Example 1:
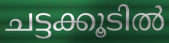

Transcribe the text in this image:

ചട്ടക്കൂടിൽ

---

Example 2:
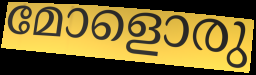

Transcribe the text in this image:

മോളൊരു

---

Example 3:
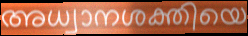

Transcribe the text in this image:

അധ്വാനശക്തിയെ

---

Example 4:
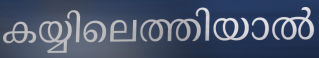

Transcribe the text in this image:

കയ്യിലെത്തിയാൽ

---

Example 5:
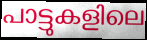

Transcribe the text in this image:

പാട്ടുകളിലെ